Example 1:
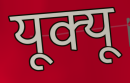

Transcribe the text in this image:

यूक्यू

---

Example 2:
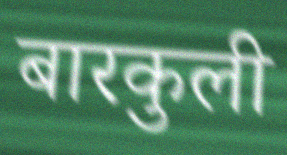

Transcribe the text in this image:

बारकुली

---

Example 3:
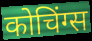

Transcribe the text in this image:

कोचिंग्स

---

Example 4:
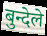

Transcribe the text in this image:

बुन्देले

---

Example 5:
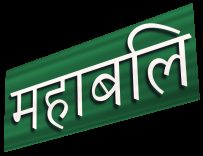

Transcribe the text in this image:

महाबलि